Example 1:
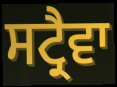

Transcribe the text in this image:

ਸਟ੍ਰੈਵਾ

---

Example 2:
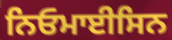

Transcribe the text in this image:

ਨਿਓਮਾਈਸਿਨ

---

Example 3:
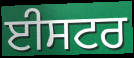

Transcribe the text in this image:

ਈਸਟਰ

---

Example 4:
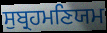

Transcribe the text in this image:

ਸੁਬ੍ਰਹਮਣਿਯਮ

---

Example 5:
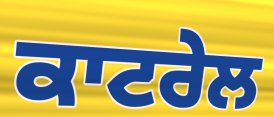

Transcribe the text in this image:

ਕਾਟਰੇਲ